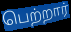
பெற்றார்